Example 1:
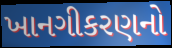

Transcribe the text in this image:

ખાનગીકરણનો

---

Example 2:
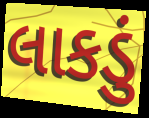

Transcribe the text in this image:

લાકડું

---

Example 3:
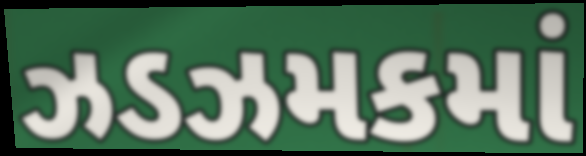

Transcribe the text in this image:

ઝડઝમકમાં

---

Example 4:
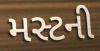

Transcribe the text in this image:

મસ્ટની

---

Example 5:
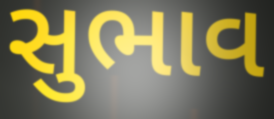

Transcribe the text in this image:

સુભાવ